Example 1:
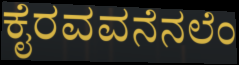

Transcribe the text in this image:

ಕೈರವವನೆನಲೆಂ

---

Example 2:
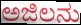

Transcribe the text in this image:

ಅಜಿಲನು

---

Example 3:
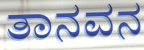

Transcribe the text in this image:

ತಾನವನ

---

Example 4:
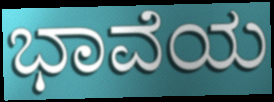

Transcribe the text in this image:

ಭಾವೆಯ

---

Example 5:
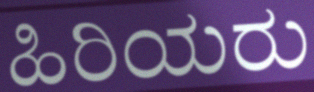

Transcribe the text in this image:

ಹಿರಿಯರು